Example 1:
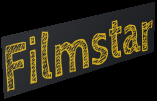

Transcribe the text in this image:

Filmstar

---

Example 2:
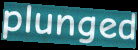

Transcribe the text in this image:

plunged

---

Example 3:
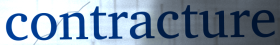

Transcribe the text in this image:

contracture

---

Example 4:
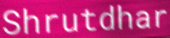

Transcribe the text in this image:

Shrutdhar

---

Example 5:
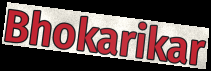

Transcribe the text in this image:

Bhokarikar